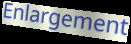
Enlargement